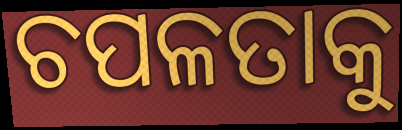
ଚପଳତାକୁ